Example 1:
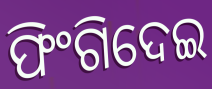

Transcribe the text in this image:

ଫିଂଗିଦେଇ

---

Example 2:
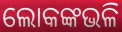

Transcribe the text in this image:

ଲୋକଙ୍କଭଳି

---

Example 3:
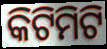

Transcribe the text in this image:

କିଟିମିଟି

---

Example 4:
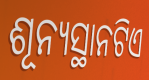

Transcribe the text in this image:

ଶୂନ୍ୟସ୍ଥାନଟିଏ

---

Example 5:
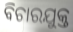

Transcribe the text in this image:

ବିଚାରଯୁକ୍ତ